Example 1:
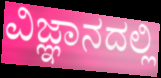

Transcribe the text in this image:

ವಿಜ್ಞಾನದಲ್ಲಿ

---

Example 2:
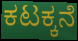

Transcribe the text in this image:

ಕಟಕ್ಕನೆ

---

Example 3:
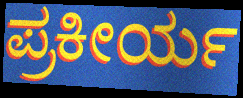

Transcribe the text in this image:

ಪ್ರಕೀರ್ಯ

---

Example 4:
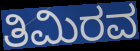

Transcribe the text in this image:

ತಿಮಿರವ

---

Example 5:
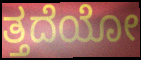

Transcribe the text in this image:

ತ್ತದೆಯೋ